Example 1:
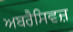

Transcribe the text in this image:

ਅਬਰੈਸਿਵਜ਼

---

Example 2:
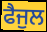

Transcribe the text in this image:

ਫੈਜੁਲ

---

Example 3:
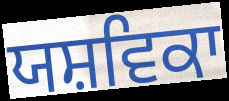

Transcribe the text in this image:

ਯਸ਼ਵਿਕਾ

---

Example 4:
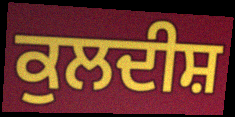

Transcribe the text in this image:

ਕੁਲਦੀਸ਼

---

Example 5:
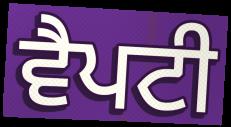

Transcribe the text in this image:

ਵੈਪਟੀ